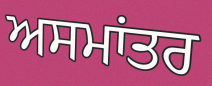
ਅਸਮਾਂਤਰ